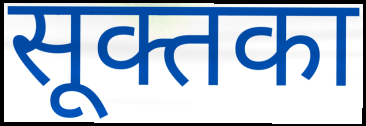
सूक्तका